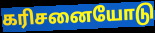
கரிசனையோடு